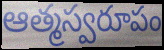
ఆత్మస్వరూపం